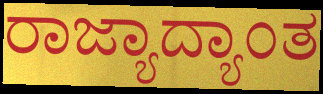
ರಾಜ್ಯಾದ್ಯಾಂತ